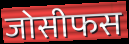
जोसीफस